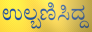
ಉಲ್ಬಣಿಸಿದ್ದ